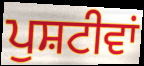
ਪੁਸ਼ਟੀਵਾਂ